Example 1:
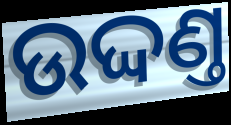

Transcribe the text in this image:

ଉଦ୍ଦଣ୍ତ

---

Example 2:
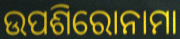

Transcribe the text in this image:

ଉପଶିରୋନାମା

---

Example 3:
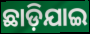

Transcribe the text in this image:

ଛାଡ଼ିଯାଇ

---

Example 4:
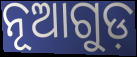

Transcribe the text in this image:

ନୂଆଗୁଡ଼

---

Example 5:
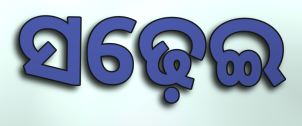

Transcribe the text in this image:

ସଢ଼େଇ